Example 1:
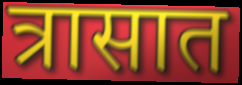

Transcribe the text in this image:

त्रासात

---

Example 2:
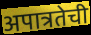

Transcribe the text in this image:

अपात्रतेची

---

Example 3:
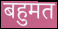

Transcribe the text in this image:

बहुमत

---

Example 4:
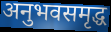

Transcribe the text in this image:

अनुभवसमृद्ध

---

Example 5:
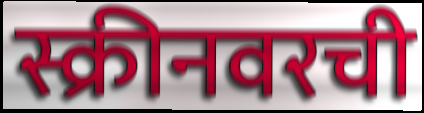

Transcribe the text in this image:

स्क्रीनवरची